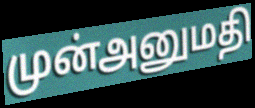
முன்அனுமதி